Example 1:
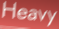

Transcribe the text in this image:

Heavy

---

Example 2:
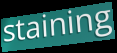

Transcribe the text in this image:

staining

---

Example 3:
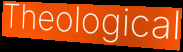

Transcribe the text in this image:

Theological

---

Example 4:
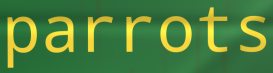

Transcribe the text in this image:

parrots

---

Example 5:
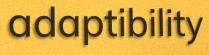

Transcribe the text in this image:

adaptibility